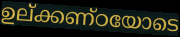
ഉല്ക്കണ്ഠയോടെ